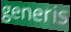
generis